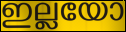
ഇല്ലയോ